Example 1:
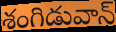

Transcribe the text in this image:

శంగిడువాన్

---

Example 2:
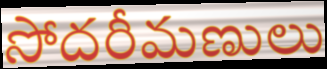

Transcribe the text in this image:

సోదరీమణులు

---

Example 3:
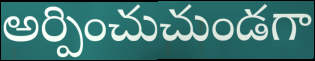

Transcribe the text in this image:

అర్పించుచుండగా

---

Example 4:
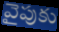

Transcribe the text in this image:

వైపుకు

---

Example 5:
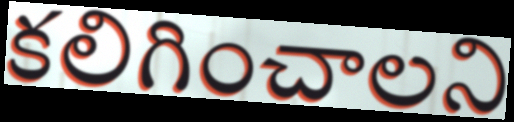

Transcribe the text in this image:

కలిగించాలని